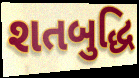
શતબુદ્ધિ